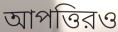
আপত্তিরও